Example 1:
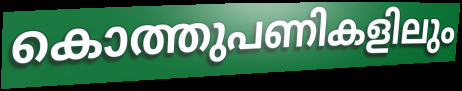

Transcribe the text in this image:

കൊത്തുപണികളിലും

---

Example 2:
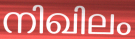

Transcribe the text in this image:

നിഖിലം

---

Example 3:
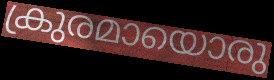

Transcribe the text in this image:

ക്രുരമായൊരു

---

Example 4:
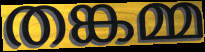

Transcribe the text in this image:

തങ്കമ്മ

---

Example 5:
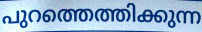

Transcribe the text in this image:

പുറത്തെത്തിക്കുന്ന